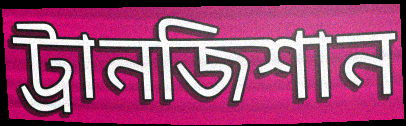
ট্রানজিশান